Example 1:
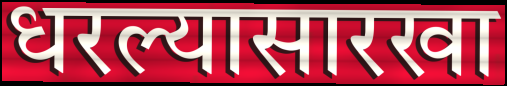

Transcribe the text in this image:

धरल्यासारखा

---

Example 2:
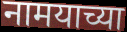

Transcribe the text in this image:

नामयाच्या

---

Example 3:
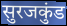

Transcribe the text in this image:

सुरजकुंड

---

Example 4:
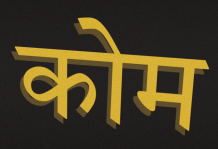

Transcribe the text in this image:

कोम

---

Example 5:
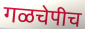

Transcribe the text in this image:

गळचेपीच